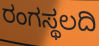
ರಂಗಸ್ಥಲದಿ